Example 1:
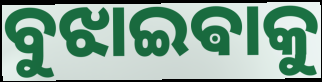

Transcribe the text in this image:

ବୁଝାଇଵାକୁ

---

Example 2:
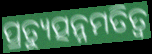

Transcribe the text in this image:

ପ୍ରତ୍ୟୁତ୍ପନ୍ନମତିତ୍ୱ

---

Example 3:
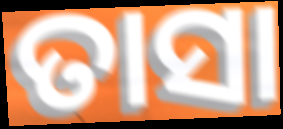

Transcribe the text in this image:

ତାସା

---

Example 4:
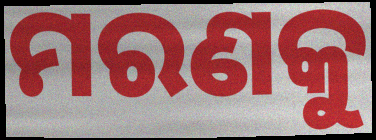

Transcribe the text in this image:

ମରଣକୁ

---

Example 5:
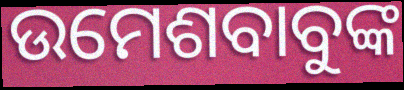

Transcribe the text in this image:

ଉମେଶବାବୁଙ୍କ